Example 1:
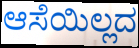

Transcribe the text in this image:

ಆಸೆಯಿಲ್ಲದ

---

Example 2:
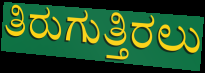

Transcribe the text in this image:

ತಿರುಗುತ್ತಿರಲು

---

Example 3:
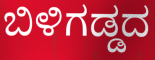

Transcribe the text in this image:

ಬಿಳಿಗಡ್ಡದ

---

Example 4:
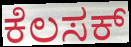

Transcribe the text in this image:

ಕೆಲಸಕ್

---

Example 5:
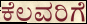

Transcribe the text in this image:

ಕೆಲವರಿಗೆ